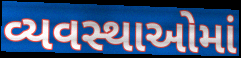
વ્યવસ્થાઓમાં